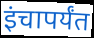
इंचापर्यंत